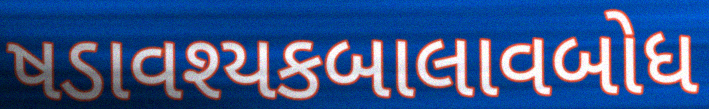
ષડાવશ્યકબાલાવબોધ